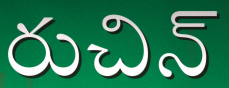
రుచిన్